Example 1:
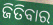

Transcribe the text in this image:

ଜିତିବାର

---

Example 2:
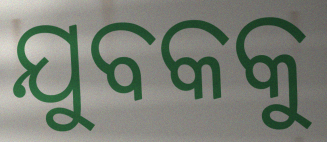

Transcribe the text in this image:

ଯୁବକକୁ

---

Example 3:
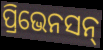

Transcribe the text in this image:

ପ୍ରିଭେନସନ୍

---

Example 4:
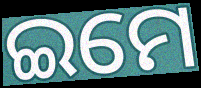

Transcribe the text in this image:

ଇମେ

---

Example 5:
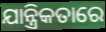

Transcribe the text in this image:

ଯାନ୍ତ୍ରିକତାରେ